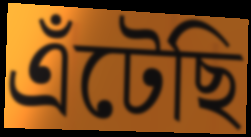
এঁটেছি